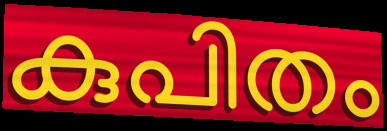
കുപിതം